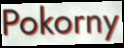
Pokorny